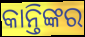
କାନ୍ତିଙ୍କର